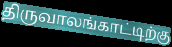
திருவாலங்காட்டிற்கு